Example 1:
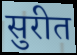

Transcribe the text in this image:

सुरीत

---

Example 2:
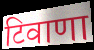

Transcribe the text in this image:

टिवाणा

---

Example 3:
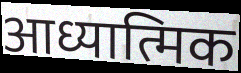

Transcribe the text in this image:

आध्यात्मिक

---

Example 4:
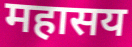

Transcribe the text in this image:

महासय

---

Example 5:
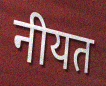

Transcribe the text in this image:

नीयत